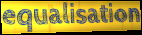
equalisation